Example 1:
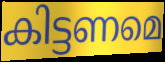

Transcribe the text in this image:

കിട്ടണമെ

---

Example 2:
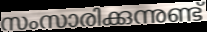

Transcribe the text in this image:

സംസാരിക്കുന്നുണ്ട്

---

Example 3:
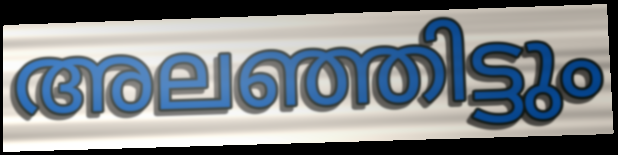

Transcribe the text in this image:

അലഞ്ഞിട്ടും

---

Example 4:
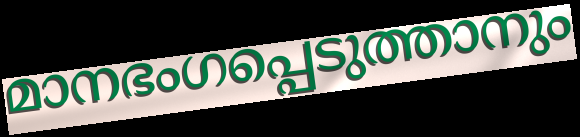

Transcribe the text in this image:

മാനഭംഗപ്പെടുത്താനും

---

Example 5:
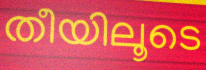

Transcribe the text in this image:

തീയിലൂടെ